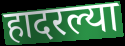
हादरल्या